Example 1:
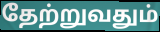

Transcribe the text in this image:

தேற்றுவதும்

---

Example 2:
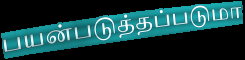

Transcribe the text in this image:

பயன்படுத்தப்படுமா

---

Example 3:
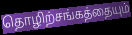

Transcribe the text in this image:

தொழிற்சங்கத்தையும்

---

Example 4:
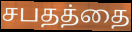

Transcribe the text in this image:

சபதத்தை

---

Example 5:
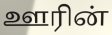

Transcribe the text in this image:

ஊரின்